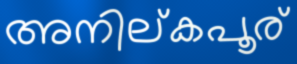
അനില്കപൂര്